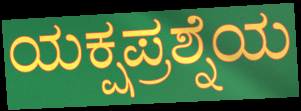
ಯಕ್ಷಪ್ರಶ್ನೆಯ